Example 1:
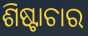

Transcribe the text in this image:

ଶିଷ୍ଟାଚାର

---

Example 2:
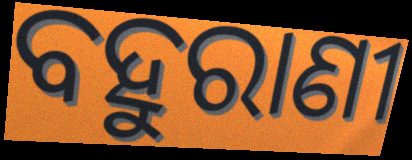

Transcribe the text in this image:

ବହୁରାଣୀ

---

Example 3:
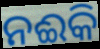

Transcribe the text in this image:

ନଈକି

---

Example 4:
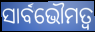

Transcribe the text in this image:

ସାର୍ବଭୌମତ୍ଵ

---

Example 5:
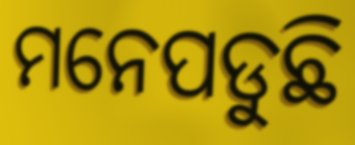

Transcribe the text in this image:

ମନେପଡୁଛି